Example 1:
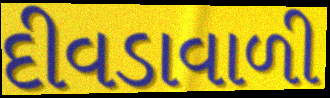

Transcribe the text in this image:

દીવડાવાળી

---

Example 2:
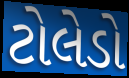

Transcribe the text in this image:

ટોલેડો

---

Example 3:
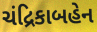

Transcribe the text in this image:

ચંદ્રિકાબહેન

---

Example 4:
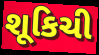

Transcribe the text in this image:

શૂકિચી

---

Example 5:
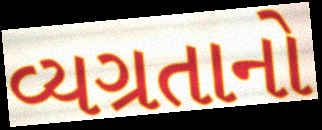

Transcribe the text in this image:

વ્યગ્રતાનો